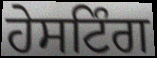
ਹੇਸਟਿੰਗ